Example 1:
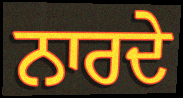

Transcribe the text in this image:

ਨਾਰਦੇ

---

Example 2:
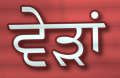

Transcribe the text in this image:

ਵੇੜਾਂ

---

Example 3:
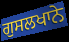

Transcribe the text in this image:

ਗੁਸਲਖਾਨੇ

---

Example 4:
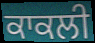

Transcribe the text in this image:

ਕਾਕਲੀ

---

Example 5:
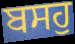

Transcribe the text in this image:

ਬਸਹੁ